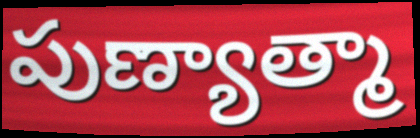
పుణ్యాత్మా